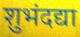
शुभंदद्या